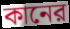
কানের